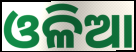
ଓଳିଆ